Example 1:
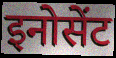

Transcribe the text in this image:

इनोसेंट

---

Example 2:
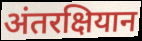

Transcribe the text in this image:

अंतरक्षियान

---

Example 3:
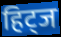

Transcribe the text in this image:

हिट्ज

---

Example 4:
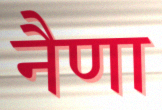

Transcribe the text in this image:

नैणा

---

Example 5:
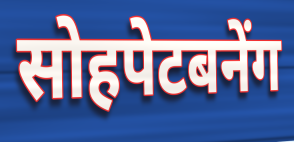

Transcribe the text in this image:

सोहपेटबनेंग